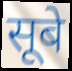
सूबे